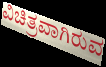
ವಿಚಿತ್ರವಾಗಿರುವ